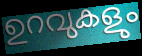
ഉറവുകളും